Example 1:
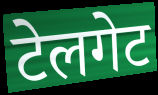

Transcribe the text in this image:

टेलगेट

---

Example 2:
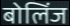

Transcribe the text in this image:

बोलिंज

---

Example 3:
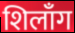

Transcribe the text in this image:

शिलाँग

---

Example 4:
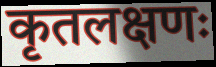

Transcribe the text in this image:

कृतलक्षणः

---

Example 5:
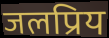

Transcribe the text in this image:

जलप्रिय